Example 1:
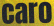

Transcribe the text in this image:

caro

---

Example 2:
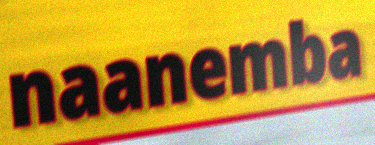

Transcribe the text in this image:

naanemba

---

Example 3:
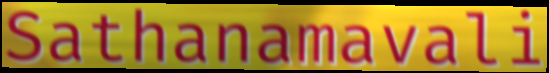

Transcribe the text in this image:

Sathanamavali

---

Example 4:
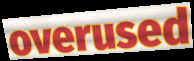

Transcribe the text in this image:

overused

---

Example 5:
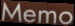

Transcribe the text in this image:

Memo